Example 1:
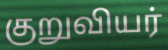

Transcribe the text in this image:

குறுவியர்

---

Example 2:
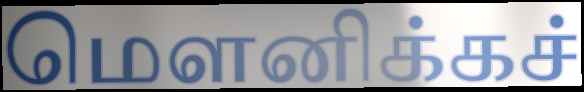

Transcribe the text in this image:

மௌனிக்கச்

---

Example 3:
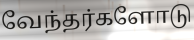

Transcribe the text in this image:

வேந்தர்களோடு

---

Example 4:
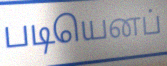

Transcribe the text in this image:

படியெனப்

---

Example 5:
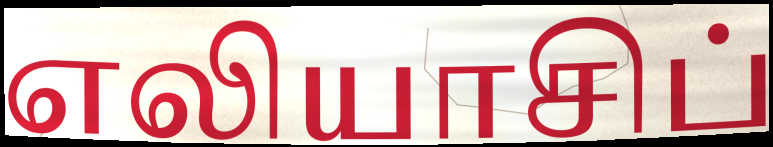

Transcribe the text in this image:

எலியாசிப்